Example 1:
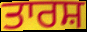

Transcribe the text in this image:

ਤਾਰਸ਼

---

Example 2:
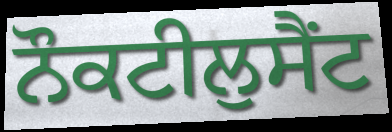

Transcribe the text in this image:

ਨੌਕਟੀਲੁਸੈਂਟ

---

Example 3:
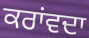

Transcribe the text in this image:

ਕਰਾਂਵਦਾ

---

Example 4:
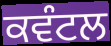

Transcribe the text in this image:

ਕਵੰਟਲ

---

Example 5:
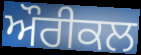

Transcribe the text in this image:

ਔਰੀਕਲ